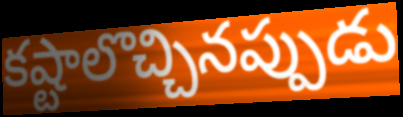
కష్టాలొచ్చినప్పుడు